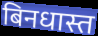
बिनधास्त